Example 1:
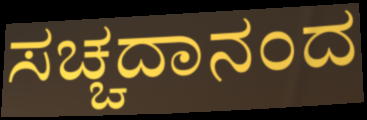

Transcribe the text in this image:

ಸಚ್ಚದಾನಂದ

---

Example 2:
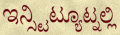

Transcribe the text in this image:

ಇನ್ಸ್ಟಿಟ್ಯೂಟ್ನಲ್ಲಿ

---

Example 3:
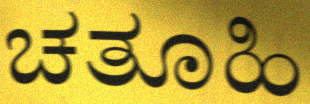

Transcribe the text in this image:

ಚತೂಹಿ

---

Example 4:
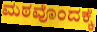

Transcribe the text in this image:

ಮಠವೊಂದಕ್ಕೆ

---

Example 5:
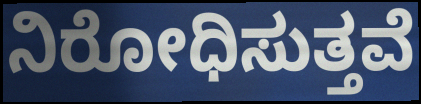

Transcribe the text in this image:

ನಿರೋಧಿಸುತ್ತವೆ